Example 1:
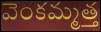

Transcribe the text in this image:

వెంకమ్మత్త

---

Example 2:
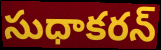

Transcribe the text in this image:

సుధాకరన్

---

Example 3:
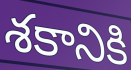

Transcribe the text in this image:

శకానికి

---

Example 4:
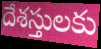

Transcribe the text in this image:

దేశస్తులకు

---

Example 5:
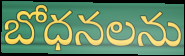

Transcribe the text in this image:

బోధనలను